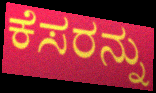
ಕೆಸರನ್ನು